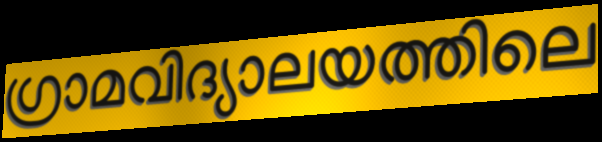
ഗ്രാമവിദ്യാലയത്തിലെ